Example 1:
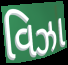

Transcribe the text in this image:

વિઝા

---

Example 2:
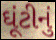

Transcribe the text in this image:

ઘૂંટીનું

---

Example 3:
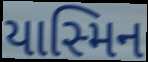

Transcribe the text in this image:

યાસ્મિન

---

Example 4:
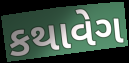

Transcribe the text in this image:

કથાવેગ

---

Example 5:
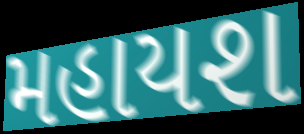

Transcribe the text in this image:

મહાયશ